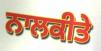
ਨਾਲਕੀਤੇ